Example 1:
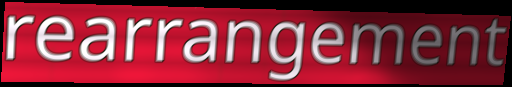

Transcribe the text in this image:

rearrangement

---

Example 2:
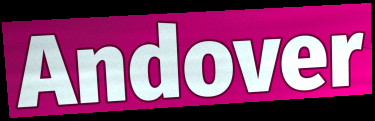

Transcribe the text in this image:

Andover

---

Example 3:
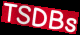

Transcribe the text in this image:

TSDBs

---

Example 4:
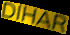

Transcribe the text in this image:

DIHAR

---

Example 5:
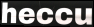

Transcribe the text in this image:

heccu